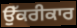
ਉੱਕਰੀਕਾਰ